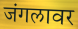
जंगलावर